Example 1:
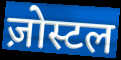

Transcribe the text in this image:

ज़ोस्टल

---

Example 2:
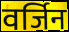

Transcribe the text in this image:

वर्जिन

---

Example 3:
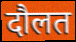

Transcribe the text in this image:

दौलत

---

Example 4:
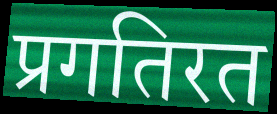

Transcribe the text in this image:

प्रगतिरत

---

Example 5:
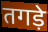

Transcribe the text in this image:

तगड़े